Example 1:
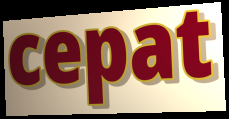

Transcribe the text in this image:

cepat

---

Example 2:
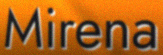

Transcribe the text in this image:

Mirena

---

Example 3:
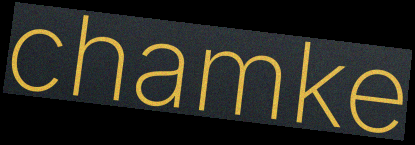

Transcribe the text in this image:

chamke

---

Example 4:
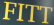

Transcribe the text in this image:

FITT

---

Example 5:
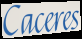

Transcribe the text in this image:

Caceres